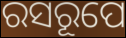
ରସରୂପେ